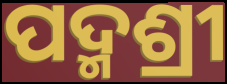
ପଦ୍ମଶ୍ରୀ